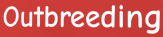
Outbreeding